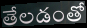
తేలడంతో